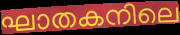
ഘാതകനിലെ